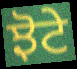
ਝੋਟੇ